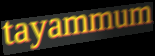
tayammum